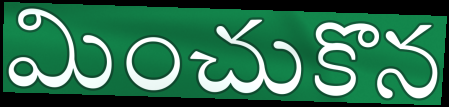
మించుకొన